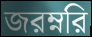
জরম্নরি